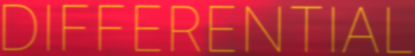
DIFFERENTIAL